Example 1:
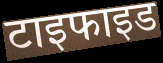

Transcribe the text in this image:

टाइफाइड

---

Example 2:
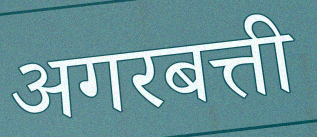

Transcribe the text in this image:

अगरबत्ती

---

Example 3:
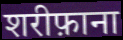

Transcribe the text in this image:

शरीफ़ाना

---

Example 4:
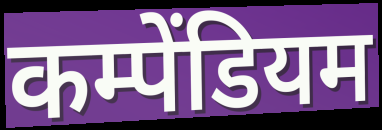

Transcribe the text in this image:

कम्पेंडियम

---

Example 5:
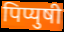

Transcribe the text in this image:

पिप्युषी